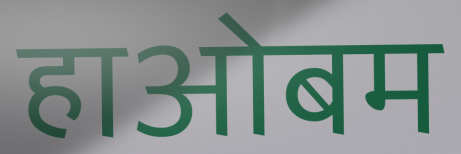
हाओबम